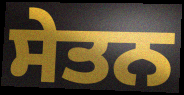
ਸੇਤਨ